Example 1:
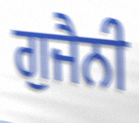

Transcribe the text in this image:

ਗੁਜੈਨੀ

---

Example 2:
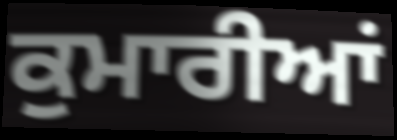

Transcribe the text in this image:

ਕੁਮਾਰੀਆਂ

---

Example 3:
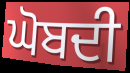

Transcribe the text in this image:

ਘੋਬਦੀ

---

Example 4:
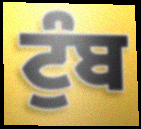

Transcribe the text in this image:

ਟੁੰਬ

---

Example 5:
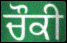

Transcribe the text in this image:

ਚੌਕੀ